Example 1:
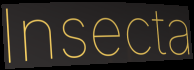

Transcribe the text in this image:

Insecta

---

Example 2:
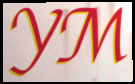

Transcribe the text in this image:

YM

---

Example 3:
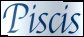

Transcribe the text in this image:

Piscis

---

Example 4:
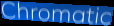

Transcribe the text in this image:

Chromatic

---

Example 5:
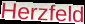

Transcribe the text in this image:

Herzfeld